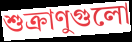
শুক্রাণুগুলো